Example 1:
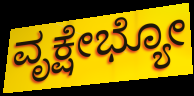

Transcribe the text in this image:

ವೃಕ್ಷೇಭ್ಯೋ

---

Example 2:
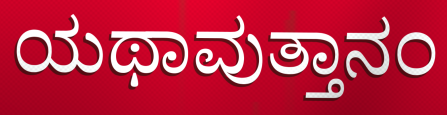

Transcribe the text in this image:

ಯಥಾವುತ್ತಾನಂ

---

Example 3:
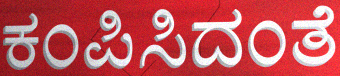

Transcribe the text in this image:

ಕಂಪಿಸಿದಂತೆ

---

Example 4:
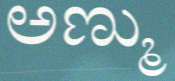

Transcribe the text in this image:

ಅಣ್ಮು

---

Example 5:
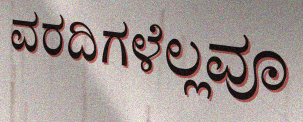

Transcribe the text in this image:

ವರದಿಗಳೆಲ್ಲವೂ